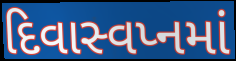
દિવાસ્વપ્નમાં